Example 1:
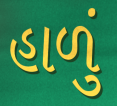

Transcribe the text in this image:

હાળું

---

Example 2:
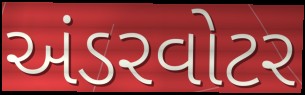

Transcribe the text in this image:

અંડરવોટર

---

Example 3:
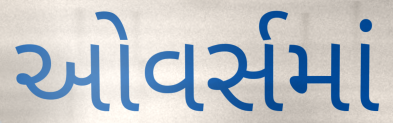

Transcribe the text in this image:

ઓવર્સમાં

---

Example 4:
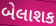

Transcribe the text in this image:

બેલાશક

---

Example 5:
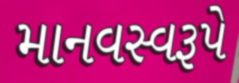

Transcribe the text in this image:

માનવસ્વરૂપે